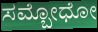
ಸಮ್ಬೋಧೋ